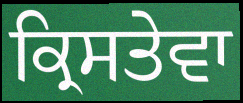
ਕ੍ਰਿਸਤੇਵਾ